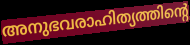
അനുഭവരാഹിത്യത്തിന്റെ